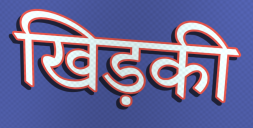
खिड़की